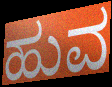
ಹುವ